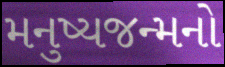
મનુષ્યજન્મનો